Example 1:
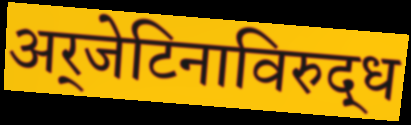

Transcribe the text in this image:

अर्जेटिनाविरुद्ध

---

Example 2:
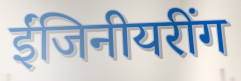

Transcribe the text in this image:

ईंजिनीयरींग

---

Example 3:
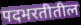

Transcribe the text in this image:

पदभरतीतील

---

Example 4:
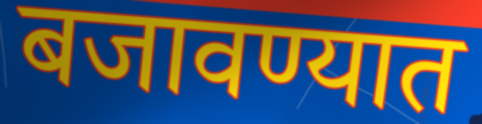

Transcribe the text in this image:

बजावण्यात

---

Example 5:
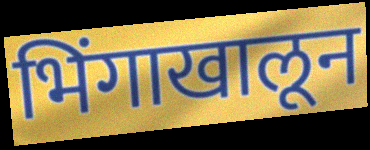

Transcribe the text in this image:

भिंगाखालून